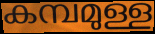
കമ്പമുള്ള